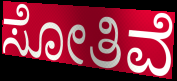
ಸೋತಿವೆ